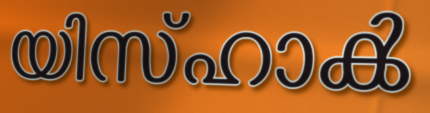
യിസ്ഹാൿ